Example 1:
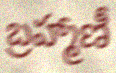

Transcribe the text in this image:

బ్రహ్మాణీ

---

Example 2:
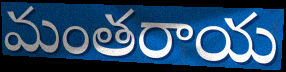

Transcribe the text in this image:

మంతరాయ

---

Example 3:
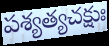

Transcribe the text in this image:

పశ్యత్యచక్షుః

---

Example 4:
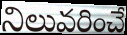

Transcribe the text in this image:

నిలువరించే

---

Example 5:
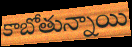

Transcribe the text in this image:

కాబోతున్నాయి